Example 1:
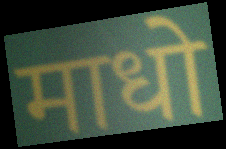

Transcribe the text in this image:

माधो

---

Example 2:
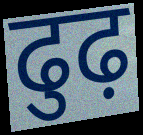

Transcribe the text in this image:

ढुढ़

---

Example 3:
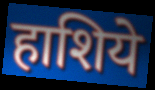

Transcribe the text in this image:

हाशिये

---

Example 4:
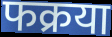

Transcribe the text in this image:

फक्रया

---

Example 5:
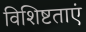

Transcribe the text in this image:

विशिष्टताएं